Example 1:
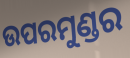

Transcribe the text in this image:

ଉପରମୁଣ୍ଡର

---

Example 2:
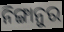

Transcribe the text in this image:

ନିଙ୍ଗାନୁର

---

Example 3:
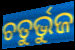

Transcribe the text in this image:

ଚତୁର୍ଭୁଜ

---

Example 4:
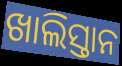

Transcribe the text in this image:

ଖାଲିସ୍ତାନ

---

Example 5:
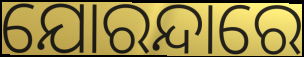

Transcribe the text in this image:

ଯୋରନ୍ଦାରେ